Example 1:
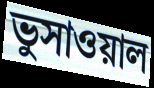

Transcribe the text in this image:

ভুসাওয়াল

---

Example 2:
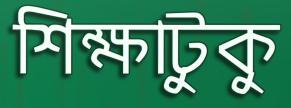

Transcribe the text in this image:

শিক্ষাটুকু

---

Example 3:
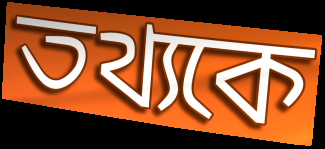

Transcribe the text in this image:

তথ্যকে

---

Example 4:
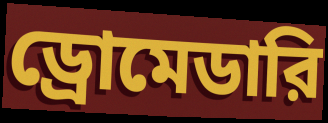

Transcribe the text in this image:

ড্রোমেডারি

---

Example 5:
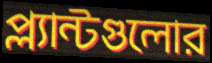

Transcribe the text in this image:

প্ল্যান্টগুলোর